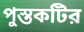
পুস্তকটির